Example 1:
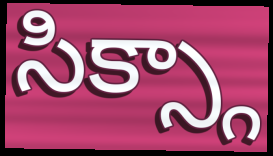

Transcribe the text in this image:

సిక్స్గా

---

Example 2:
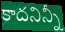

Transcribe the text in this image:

కాదనిన్నీ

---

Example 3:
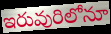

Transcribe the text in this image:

ఇరువురిలోనూ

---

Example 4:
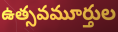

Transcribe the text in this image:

ఉత్సవమూర్తుల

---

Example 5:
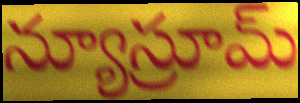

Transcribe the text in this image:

న్యూస్రూమ్